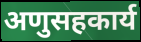
अणुसहकार्य